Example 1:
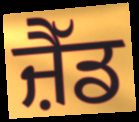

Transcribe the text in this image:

ਜ਼ੈੱਡ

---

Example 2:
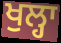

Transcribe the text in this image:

ਖੁਲ੍ਹਾ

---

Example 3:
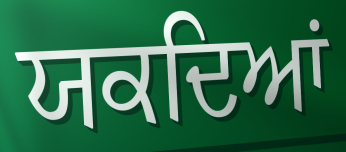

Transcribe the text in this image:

ਯਕਦਿਆਂ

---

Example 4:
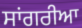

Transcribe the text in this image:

ਸਾਂਗਰੀਆ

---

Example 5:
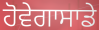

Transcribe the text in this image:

ਹੋਵੇਗਾਸਾਡੇ